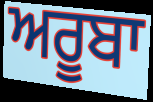
ਅਰੂਬਾ